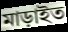
মাড়াইত